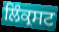
ਲਿੰਕ੍ਰਸਟ